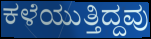
ಕಳೆಯುತ್ತಿದ್ದವು